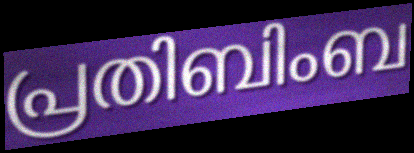
പ്രതിബിംബ